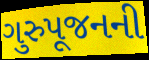
ગુરુપૂજનની